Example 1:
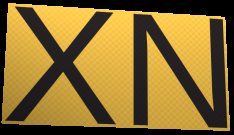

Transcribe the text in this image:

XN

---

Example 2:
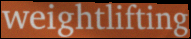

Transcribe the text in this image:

weightlifting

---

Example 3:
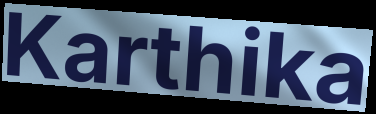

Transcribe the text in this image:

Karthika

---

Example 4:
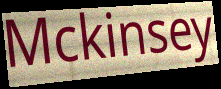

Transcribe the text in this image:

Mckinsey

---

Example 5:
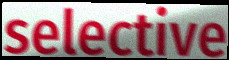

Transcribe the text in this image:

selective